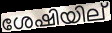
ശേഷിയില്